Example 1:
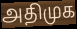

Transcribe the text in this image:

அதிமுக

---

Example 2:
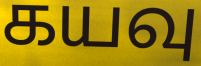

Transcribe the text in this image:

கயவு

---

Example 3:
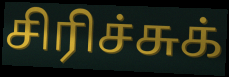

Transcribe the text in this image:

சிரிச்சுக்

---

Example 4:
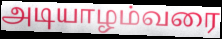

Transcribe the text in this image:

அடியாழம்வரை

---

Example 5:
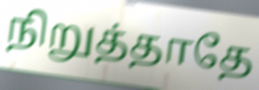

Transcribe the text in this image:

நிறுத்தாதே